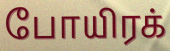
போயிரக்